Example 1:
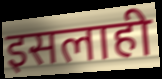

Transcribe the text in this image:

इसलाही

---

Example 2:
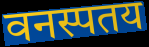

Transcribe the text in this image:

वनस्पतय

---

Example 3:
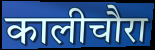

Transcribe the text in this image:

कालीचौरा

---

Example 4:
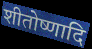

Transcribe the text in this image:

शीतोष्णादि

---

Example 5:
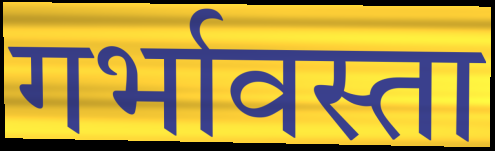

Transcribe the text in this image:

गर्भावस्ता